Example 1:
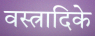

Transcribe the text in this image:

वस्त्रादिके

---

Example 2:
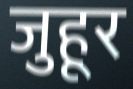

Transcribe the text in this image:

जुहूर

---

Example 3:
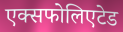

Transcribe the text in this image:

एक्सफोलिएटेड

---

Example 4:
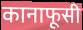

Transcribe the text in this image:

कानाफूसी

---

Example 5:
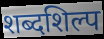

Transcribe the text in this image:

शब्दशिल्प